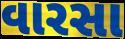
વારસા